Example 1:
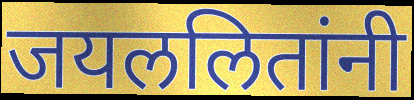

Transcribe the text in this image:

जयललितांनी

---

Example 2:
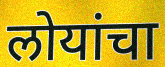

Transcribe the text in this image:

लोयांचा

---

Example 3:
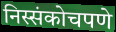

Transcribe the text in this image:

निस्संकोचपणे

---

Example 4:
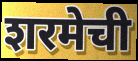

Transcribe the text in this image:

शरमेची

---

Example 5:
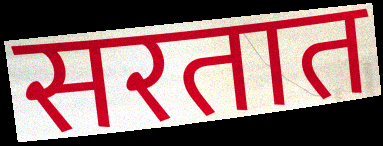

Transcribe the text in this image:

सरतात